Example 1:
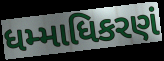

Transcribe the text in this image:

ધમ્માધિકરણં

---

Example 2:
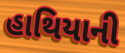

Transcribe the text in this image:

હાથિયાની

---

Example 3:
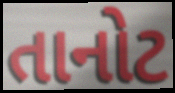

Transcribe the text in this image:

તાનોટ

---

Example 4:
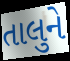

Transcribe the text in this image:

તાલુને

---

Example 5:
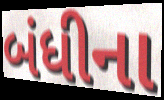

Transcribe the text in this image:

બંધીના